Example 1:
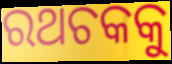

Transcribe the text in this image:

ରଥଚକକୁ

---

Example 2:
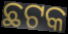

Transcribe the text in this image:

ଛଟକ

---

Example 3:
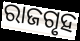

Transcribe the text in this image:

ରାଜଗୃହ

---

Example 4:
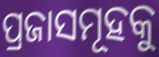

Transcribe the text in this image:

ପ୍ରଜାସମୂହକୁ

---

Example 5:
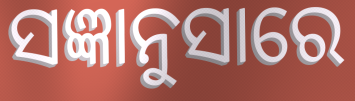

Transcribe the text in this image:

ସଜ୍ଞାନୁସାରେ